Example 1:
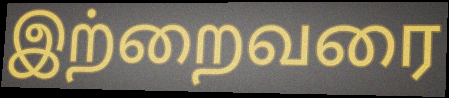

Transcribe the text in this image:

இற்றைவரை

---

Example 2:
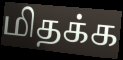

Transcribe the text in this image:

மிதக்க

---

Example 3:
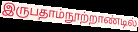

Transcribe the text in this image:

இருபதாம்நூற்றாண்டில்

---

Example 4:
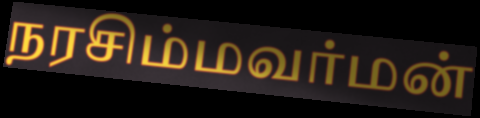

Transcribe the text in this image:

நரசிம்மவர்மன்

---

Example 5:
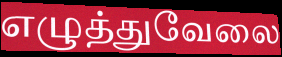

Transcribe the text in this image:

எழுத்துவேலை